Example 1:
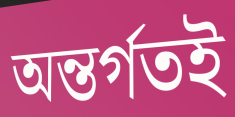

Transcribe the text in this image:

অন্তর্গতই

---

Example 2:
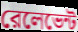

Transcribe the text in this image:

রেলেভেন্ট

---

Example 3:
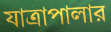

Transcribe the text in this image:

যাত্রাপালার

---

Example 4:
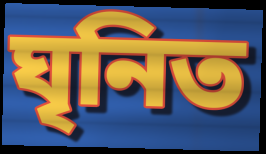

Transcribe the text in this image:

ঘৃনিত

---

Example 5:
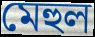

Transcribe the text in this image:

মেহুল